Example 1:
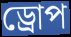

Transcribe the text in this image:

ড্ৰোপ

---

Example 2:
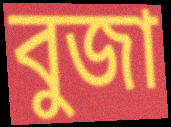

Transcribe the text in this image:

বুজা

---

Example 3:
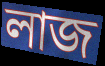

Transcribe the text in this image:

লাজ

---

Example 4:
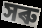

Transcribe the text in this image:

সৰু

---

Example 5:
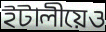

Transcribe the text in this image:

ইটালীয়েও